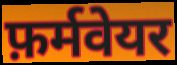
फ़र्मवेयर